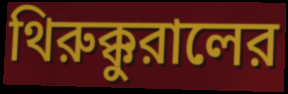
থিরুক্কুরালের